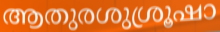
ആതുരശുശ്രൂഷാ